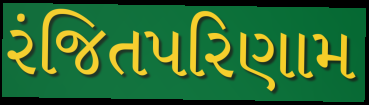
રંજિતપરિણામ